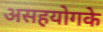
असहयोगके